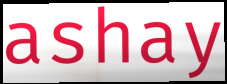
ashay